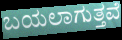
ಬಯಲಾಗುತ್ತವೆ